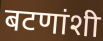
बटणांशी